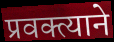
प्रवक्त्याने